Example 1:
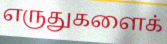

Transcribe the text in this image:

எருதுகளைக்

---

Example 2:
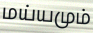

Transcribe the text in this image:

மய்யமும்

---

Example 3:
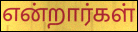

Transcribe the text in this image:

என்றார்கள்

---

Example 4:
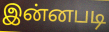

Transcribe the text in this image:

இன்னபடி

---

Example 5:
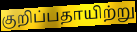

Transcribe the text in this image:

குறிப்பதாயிற்று